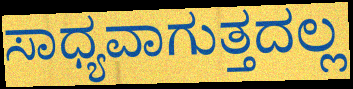
ಸಾಧ್ಯವಾಗುತ್ತದಲ್ಲ